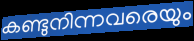
കണ്ടുനിന്നവരെയും